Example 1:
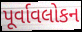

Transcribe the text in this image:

પૂર્વાવલોકન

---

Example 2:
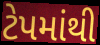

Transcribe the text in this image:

ટેપમાંથી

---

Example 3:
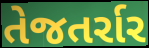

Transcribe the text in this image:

તેજતર્રાર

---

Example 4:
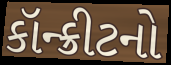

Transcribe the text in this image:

કૉન્ક્રીટનો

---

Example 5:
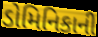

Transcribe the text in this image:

ડોમિનિકાની